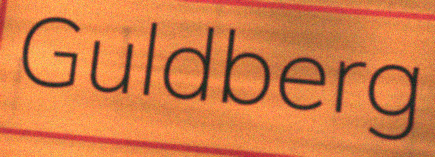
Guldberg